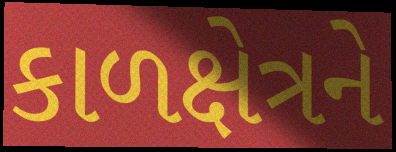
કાળક્ષેત્રને